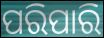
ପରିପାରି